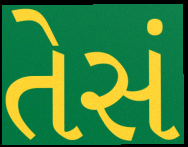
તેસં